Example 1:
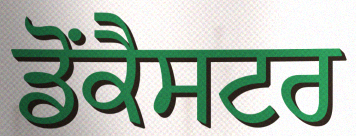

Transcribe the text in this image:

ਡੋਂਕੈਸਟਰ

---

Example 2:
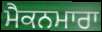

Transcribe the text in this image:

ਮੈਕਨਮਾਰਾ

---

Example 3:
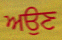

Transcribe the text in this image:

ਅਉਣ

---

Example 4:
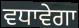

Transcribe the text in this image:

ਵਧਾਵੇਗਾ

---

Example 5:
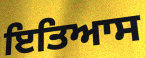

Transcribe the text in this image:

ਇਤਿਆਸ